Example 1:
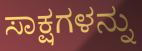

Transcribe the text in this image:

ಸಾಕ್ಷಗಳನ್ನು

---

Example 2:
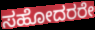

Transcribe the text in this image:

ಸಹೋದರರೇ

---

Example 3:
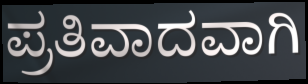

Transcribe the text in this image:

ಪ್ರತಿವಾದವಾಗಿ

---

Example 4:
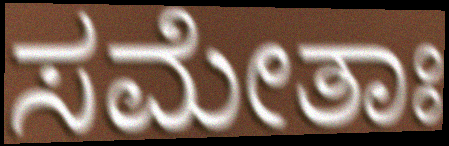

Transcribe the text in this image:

ಸಮೇತಾಃ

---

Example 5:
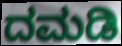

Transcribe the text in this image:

ದಮಡಿ